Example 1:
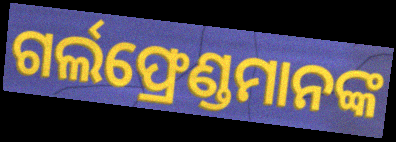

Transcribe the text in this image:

ଗର୍ଲଫ୍ରେଣ୍ଡମାନଙ୍କ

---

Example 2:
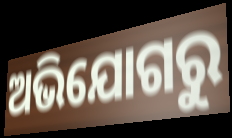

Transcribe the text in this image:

ଅଭିଯୋଗରୁ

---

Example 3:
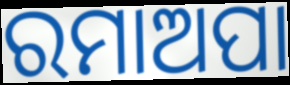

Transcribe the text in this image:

ରମାଅପା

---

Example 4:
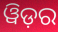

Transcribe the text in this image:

ୱିଡ଼ର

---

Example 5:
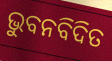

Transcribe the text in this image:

ଭୁବନବିଦିତ